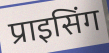
प्राइसिंग